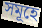
সমূহে